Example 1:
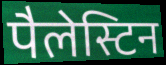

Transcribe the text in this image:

पैलेस्टिन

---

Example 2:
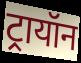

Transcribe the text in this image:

ट्रायॉन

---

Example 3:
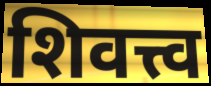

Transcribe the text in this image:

शिवत्त्व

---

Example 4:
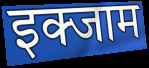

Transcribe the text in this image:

इक्जाम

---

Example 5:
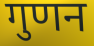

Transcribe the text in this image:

गुणन